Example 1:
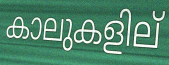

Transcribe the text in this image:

കാലുകളില്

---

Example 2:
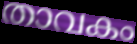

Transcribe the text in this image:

താവകം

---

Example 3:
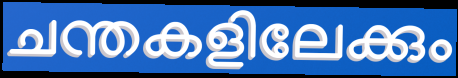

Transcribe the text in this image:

ചന്തകളിലേക്കും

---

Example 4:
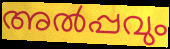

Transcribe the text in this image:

അൽപ്പവും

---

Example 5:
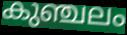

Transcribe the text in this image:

കുഞ്ചലം